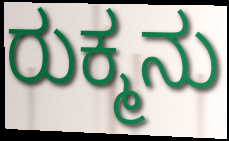
ರುಕ್ಮನು